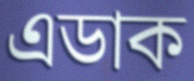
এডাক